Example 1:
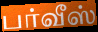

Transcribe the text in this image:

பர்வீஸ்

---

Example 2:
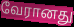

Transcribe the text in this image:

வேரானது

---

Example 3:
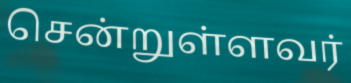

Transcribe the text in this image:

சென்றுள்ளவர்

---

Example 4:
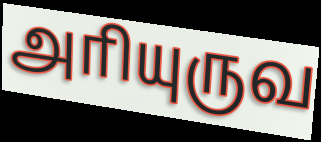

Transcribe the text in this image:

அரியுருவ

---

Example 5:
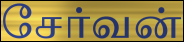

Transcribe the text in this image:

சேர்வன்